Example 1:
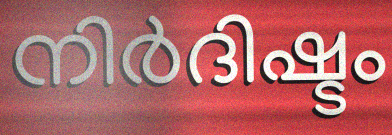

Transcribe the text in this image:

നിർദിഷ്ടം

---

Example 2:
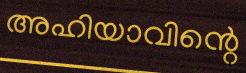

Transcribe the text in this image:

അഹിയാവിന്റെ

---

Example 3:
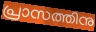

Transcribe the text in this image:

പ്രാസത്തിനു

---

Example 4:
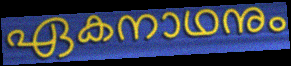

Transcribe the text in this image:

ഏകനാഥനും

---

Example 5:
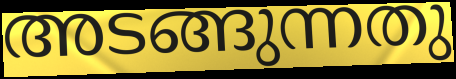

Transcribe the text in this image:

അടങ്ങുന്നതു